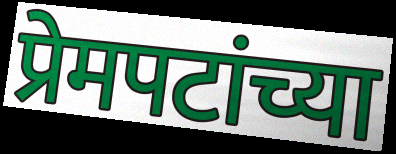
प्रेमपटांच्या